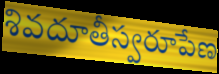
శివదూతీస్వరూపేణ